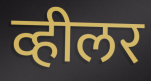
व्हीलर